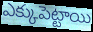
ఎక్కుపెట్టాయి